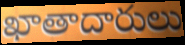
ఖాతాదారులు